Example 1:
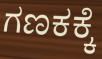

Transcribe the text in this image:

ಗಣಕಕ್ಕೆ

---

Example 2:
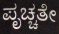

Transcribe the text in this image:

ಪೃಚ್ಚತೇ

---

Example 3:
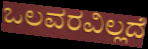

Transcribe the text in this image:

ಒಲವರವಿಲ್ಲದೆ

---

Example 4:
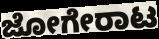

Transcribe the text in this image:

ಜೋಗೇರಾಟ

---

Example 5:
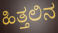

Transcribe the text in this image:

ಹಿತ್ತಲಿನ